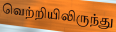
வெற்றியிலிருந்து